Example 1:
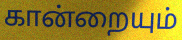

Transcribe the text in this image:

கான்றையும்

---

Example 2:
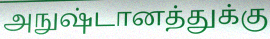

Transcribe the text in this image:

அநுஷ்டானத்துக்கு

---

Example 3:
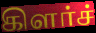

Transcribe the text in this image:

கிளர்ச்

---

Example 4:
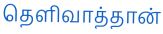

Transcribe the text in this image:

தெளிவாத்தான்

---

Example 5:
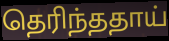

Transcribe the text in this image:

தெரிந்ததாய்